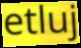
etluj